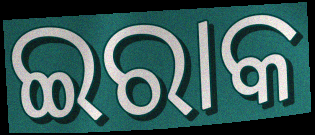
ଇରାକ